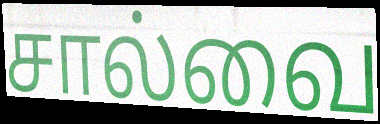
சால்வை